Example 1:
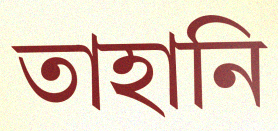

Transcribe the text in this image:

তাহানি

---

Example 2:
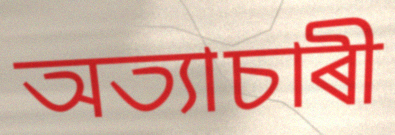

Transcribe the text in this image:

অত্যাচাৰী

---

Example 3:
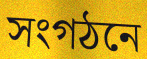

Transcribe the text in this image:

সংগঠনে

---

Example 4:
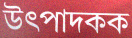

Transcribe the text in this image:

উৎপাদকক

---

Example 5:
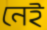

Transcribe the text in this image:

নেই